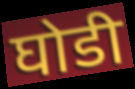
घोडी